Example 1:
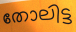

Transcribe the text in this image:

തോലിട്ട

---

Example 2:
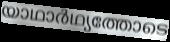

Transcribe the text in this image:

യാഥാർഥ്യത്തോടെ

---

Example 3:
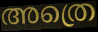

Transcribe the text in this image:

അത്രെ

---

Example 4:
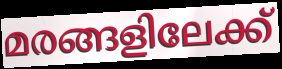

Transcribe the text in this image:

മരങ്ങളിലേക്ക്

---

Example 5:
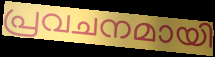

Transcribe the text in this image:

പ്രവചനമായി